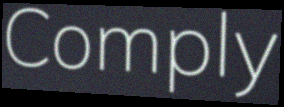
Comply